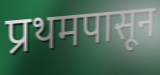
प्रथमपासून